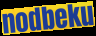
nodbeku